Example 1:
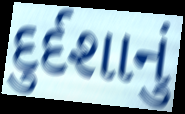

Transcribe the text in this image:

દુર્દશાનું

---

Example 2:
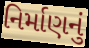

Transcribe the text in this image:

નિર્માણનું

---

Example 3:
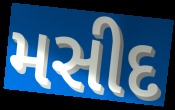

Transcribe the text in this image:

મસીદ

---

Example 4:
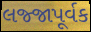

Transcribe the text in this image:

લજ્જાપૂર્વક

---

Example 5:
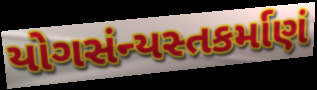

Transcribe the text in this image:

યોગસંન્યસ્તકર્માણં